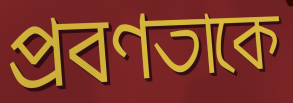
প্রবণতাকে